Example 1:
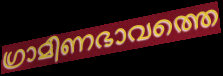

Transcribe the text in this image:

ഗ്രാമീണഭാവത്തെ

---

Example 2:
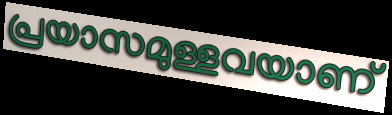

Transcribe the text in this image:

പ്രയാസമുള്ളവയാണ്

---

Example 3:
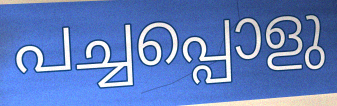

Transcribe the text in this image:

പച്ചപ്പൊളു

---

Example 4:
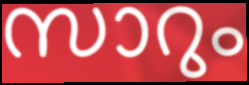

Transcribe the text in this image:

സാറും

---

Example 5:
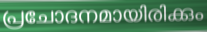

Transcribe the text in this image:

പ്രചോദനമായിരിക്കും